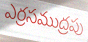
ఎర్రసముద్రపు